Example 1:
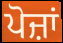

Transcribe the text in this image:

ਪੋਜ਼ਾਂ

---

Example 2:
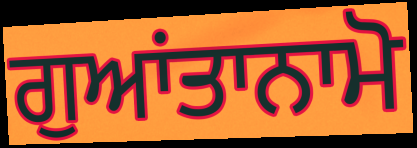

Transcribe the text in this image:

ਗੁਆਂਤਾਨਾਮੋ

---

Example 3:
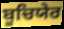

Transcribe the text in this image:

ਬੂਚਿਯੇਰ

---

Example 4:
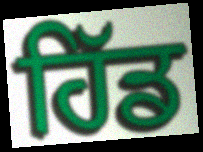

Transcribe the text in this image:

ਹਿੱਡ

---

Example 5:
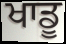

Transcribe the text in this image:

ਖਾਡੂ